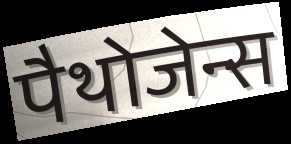
पैथोजेन्स